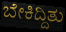
ಬೇಕಿದ್ದಿತು